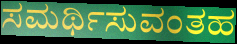
ಸಮರ್ಥಿಸುವಂತಹ